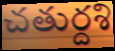
చతుర్దశి